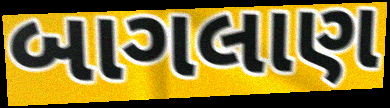
બાગલાણ